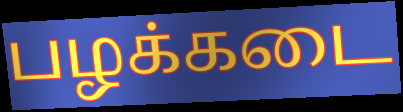
பழக்கடை